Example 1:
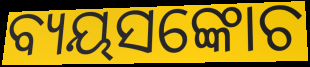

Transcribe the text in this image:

ବ୍ୟୟସଙ୍କୋଚ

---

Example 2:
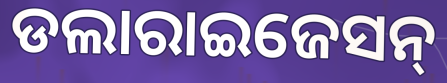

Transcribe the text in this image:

ଡଲାରାଇଜେସନ୍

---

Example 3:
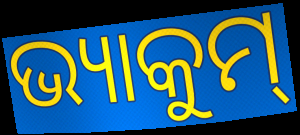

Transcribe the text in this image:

ଭ୍ୟାକୁମ୍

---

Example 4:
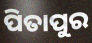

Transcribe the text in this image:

ପିତାପୁର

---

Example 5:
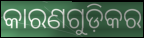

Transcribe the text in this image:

କାରଣଗୁଡ଼ିକର